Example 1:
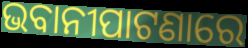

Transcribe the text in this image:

ଭବାନୀପାଟଣାରେ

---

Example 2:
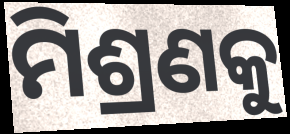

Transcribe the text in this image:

ମିଶ୍ରଣକୁ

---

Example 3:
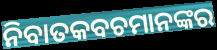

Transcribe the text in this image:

ନିବାତକବଚମାନଙ୍କର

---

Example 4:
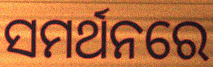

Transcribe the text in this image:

ସମର୍ଥନରେ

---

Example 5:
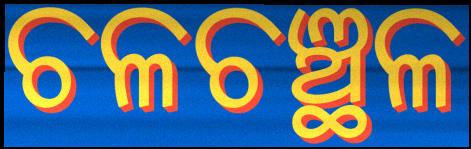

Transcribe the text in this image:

ଚଳଚଞ୍ଛଳ